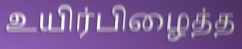
உயிர்பிழைத்த